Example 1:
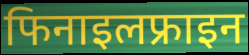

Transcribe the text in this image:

फिनाइलफ्राइन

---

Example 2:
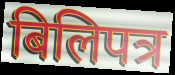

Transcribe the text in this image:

बिलिपत्र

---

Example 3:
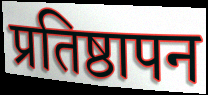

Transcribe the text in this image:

प्रतिष्ठापन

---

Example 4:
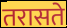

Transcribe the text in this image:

तरासते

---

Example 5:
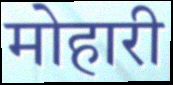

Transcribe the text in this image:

मोहारी